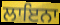
ਲਾਇਨਾ